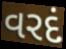
વરદં